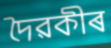
দৈৱকীৰ